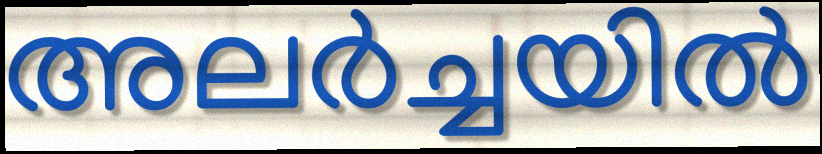
അലർച്ചയിൽ